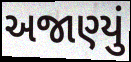
અજાણ્યું